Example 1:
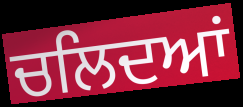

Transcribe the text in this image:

ਚਲਿਦਆਂ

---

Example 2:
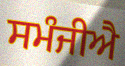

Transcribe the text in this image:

ਸਮੰਜੀਐ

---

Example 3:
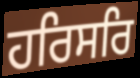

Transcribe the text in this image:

ਹਰਿਸਰਿ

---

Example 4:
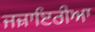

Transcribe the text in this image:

ਜਜ਼ਾਇਰੀਆ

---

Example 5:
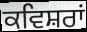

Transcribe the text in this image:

ਕਵਿਸ਼ਰਾਂ